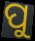
ପୁ